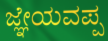
ಜ್ಞೇಯವಪ್ಪ